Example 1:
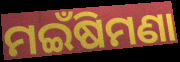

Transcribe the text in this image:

ମଇଁଷିମଣା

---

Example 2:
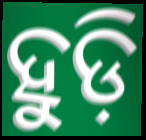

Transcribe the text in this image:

ହୁଡ଼ି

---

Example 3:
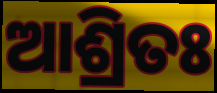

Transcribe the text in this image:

ଆଶ୍ରିତଃ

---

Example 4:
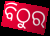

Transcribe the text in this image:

ବିଠୁର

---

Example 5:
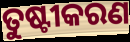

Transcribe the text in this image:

ତୁଷ୍ଟୀକରଣ